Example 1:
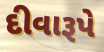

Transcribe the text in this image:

દીવારૂપે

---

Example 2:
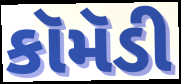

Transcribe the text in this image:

કૉમૅડી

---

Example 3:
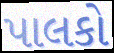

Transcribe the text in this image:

પાલકો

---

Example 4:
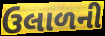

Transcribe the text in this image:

ઉલાળની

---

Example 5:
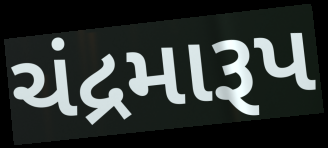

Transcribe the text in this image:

ચંદ્રમારૂપ